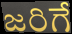
జరిగే